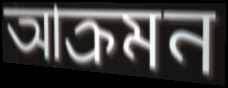
আক্ৰমন